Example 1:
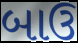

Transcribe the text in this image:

બાઉ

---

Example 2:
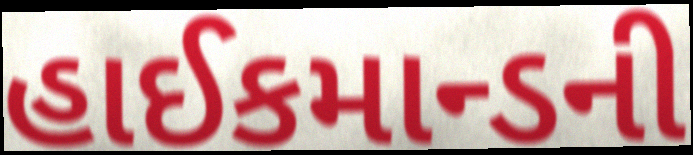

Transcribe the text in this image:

હાઈકમાન્ડની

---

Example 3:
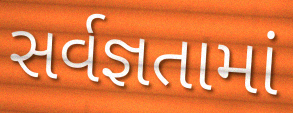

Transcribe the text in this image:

સર્વજ્ઞતામાં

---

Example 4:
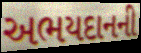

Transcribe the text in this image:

અભયદાનની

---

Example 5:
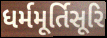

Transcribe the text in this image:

ધર્મમૂર્તિસૂરિ